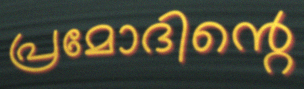
പ്രമോദിന്റെ